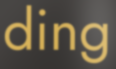
ding